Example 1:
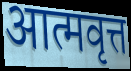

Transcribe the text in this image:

आत्मवृत्त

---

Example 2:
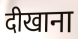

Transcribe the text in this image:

दीखाना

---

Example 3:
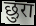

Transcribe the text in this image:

छुरा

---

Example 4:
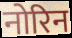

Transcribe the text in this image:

नोरिन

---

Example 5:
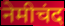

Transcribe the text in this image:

नेमीचंद